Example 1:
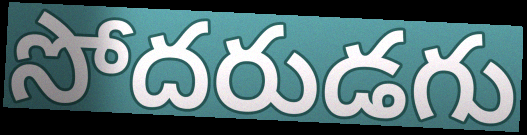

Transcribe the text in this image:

సోదరుడగు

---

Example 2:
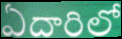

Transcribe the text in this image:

ఏదారిలో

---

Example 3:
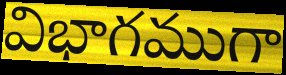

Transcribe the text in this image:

విభాగముగా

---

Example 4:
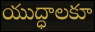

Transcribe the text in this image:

యుద్ధాలకూ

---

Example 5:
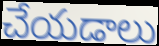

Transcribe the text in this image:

చేయడాలు